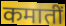
कमातीं